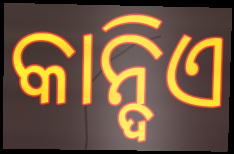
କାନ୍ଦିଏ